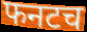
फनटच